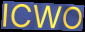
ICWO